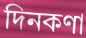
দিনকণা